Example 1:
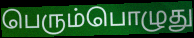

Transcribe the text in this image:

பெரும்பொழுது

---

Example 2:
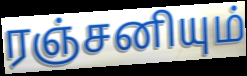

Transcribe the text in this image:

ரஞ்சனியும்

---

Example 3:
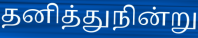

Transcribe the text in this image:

தனித்துநின்று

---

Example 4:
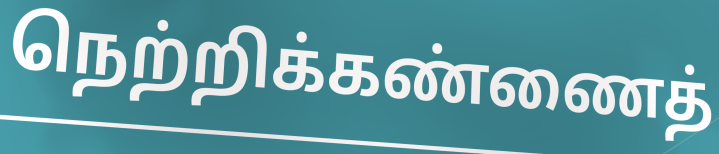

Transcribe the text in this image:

நெற்றிக்கண்ணைத்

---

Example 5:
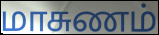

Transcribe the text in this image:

மாசுணம்